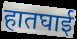
हातघाई